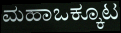
ಮಹಾಒಕ್ಕೂಟ